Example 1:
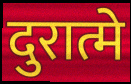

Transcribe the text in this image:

दुरात्मे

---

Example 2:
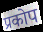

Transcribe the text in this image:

प्रकोप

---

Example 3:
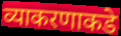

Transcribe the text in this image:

व्याकरणाकडे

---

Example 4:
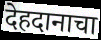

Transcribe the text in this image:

देहदानाचा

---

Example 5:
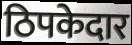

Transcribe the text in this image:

ठिपकेदार